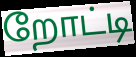
றோட்டி